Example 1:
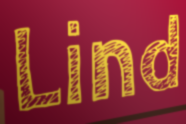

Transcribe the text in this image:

Lind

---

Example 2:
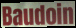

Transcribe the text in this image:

Baudoin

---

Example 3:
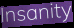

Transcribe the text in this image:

Insanity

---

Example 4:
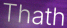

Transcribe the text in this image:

Thath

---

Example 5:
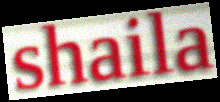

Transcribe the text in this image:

shaila